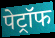
पेट्रॉफ